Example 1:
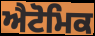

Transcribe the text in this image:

ਐਟੋਮਿਕ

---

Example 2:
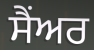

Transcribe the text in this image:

ਸੈਂਅਰ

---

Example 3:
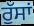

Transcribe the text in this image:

ਰੁੱਸਾਂ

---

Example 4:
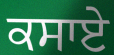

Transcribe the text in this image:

ਕਸਾਏ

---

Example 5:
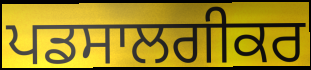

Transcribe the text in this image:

ਪਡਸਾਲਗੀਕਰ